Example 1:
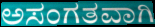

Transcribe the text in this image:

ಅಸಂಗತವಾಗಿ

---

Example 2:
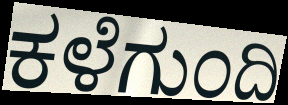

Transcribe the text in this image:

ಕಳೆಗುಂದಿ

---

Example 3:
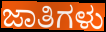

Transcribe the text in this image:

ಜಾತಿಗಳು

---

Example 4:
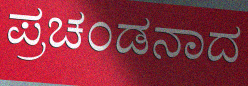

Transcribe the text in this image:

ಪ್ರಚಂಡನಾದ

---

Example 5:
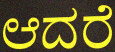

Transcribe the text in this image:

ಆದರೆ